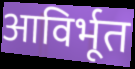
आविर्भूत